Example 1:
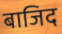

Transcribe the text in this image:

बाजिद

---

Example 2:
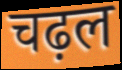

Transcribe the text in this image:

चढ़ल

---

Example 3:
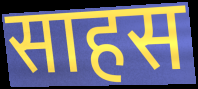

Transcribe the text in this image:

साहस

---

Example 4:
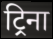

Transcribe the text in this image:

ट्रिना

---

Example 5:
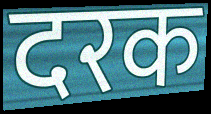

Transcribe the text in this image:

दरक